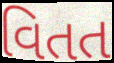
વિતત